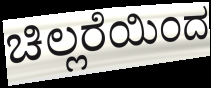
ಚಿಲ್ಲರೆಯಿಂದ